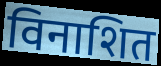
विनाशित